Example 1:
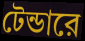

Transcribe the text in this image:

টেন্ডারে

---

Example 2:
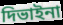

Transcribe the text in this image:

দিভাইনা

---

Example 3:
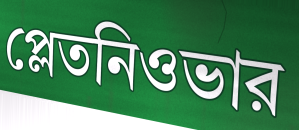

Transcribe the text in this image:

প্লেতনিওভার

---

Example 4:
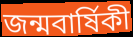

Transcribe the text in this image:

জন্মবার্ষিকী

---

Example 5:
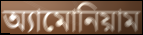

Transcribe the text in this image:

অ্যামোনিয়াম